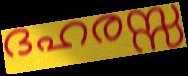
ദഹരസ്സ